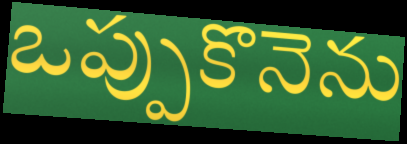
ఒప్పుకొనెను